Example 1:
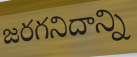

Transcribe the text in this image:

జరగనిదాన్ని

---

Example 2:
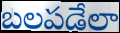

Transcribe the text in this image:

బలపడేలా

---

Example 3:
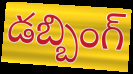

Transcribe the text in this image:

డబ్బింగ్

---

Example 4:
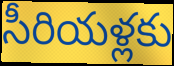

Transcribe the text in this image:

సీరియళ్లకు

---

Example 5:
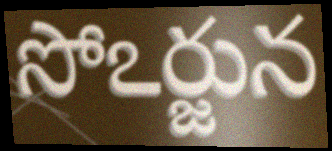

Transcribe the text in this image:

సోఽర్జున